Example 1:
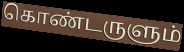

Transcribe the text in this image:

கொண்டருளும்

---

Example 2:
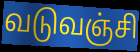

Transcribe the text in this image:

வடுவஞ்சி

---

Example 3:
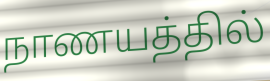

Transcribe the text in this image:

நாணயத்தில்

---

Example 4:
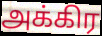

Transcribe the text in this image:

அக்கிர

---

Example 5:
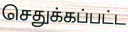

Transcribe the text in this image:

செதுக்கப்பட்ட